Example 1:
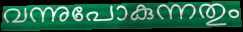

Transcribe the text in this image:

വന്നുപോകുന്നതും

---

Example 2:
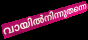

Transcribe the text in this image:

വായിൽനിന്നുതന്നെ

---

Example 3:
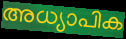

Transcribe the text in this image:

അധ്യാപിക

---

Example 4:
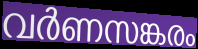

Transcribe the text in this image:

വർണസങ്കരം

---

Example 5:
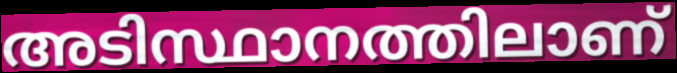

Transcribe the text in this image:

അടിസ്ഥാനത്തിലാണ്